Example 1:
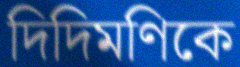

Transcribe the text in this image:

দিদিমণিকে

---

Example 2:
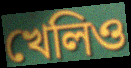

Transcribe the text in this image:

খেলিও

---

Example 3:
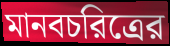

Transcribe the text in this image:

মানবচরিত্রের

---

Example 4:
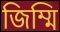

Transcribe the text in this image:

জিম্মি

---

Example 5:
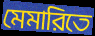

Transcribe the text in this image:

মেমারিতে